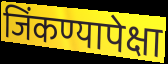
जिंकण्यापेक्षा